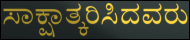
ಸಾಕ್ಷಾತ್ಕರಿಸಿದವರು